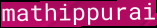
mathippurai